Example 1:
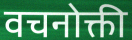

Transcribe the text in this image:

वचनोक्ती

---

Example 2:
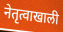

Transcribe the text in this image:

नेतृत्वाखाली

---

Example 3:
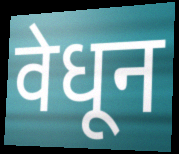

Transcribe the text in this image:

वेधून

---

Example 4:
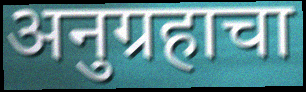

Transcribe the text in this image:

अनुग्रहाचा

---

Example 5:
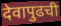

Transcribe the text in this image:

देवापुढची